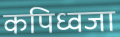
कपिध्वजा